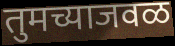
तुमच्याजवळ